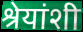
श्रेयांशी